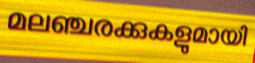
മലഞ്ചരക്കുകളുമായി